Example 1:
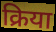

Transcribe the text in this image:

क्रिया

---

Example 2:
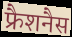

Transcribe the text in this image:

फ्रैशनैस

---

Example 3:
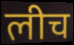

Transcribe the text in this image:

लीच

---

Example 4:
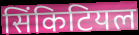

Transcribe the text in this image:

सिंकिटियल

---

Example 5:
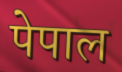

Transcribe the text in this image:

पेपाल